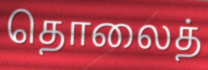
தொலைத்